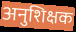
अनुशिक्षक